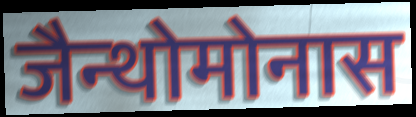
जैन्थोमोनास